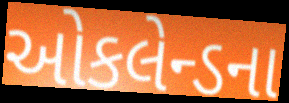
ઓકલેન્ડના